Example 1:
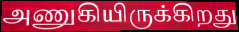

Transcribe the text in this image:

அணுகியிருக்கிறது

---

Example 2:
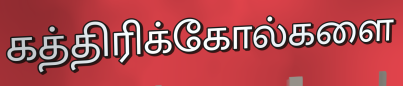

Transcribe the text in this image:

கத்திரிக்கோல்களை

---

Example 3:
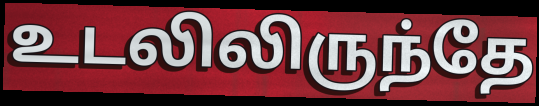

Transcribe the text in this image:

உடலிலிருந்தே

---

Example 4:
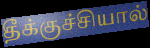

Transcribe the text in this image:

தீக்குச்சியால்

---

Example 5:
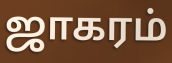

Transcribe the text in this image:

ஜாகரம்